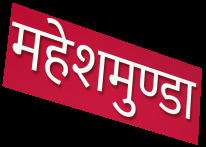
महेशमुण्डा